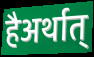
हैअर्थात्